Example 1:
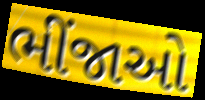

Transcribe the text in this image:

ભીંજાઓ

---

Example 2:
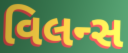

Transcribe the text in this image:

વિલન્સ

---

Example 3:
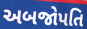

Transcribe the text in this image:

અબજોપતિ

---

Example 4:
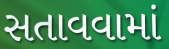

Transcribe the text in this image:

સતાવવામાં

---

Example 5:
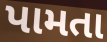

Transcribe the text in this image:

પામતા